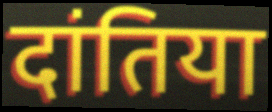
दांतिया